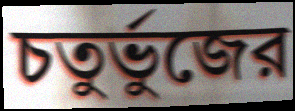
চতুর্ভুজের